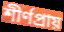
শীর্ণপ্রায়